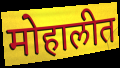
मोहालीत